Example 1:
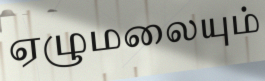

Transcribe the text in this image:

ஏழுமலையும்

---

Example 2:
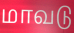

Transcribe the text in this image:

மாவடு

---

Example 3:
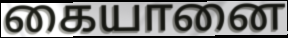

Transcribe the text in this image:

கையானை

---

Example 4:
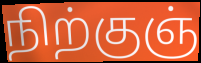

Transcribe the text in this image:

நிற்குஞ்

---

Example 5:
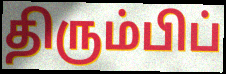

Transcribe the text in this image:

திரும்பிப்